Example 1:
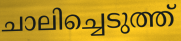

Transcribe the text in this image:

ചാലിച്ചെടുത്ത്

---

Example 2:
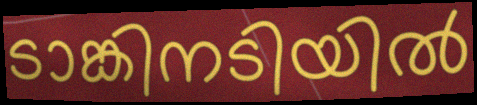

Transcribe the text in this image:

ടാങ്കിനടിയിൽ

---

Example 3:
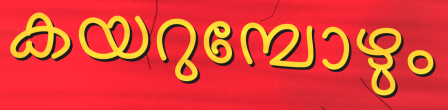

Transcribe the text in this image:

കയറുമ്പോഴും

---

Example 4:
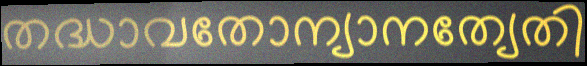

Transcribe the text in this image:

തദ്ധാവതോന്യാനത്യേതി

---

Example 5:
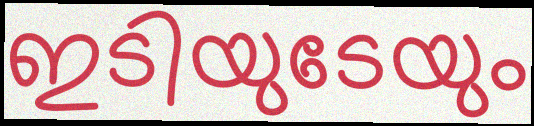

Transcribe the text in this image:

ഇടിയുടേയും